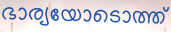
ഭാര്യയോടൊത്ത്